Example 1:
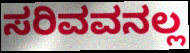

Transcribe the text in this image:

ಸರಿವವನಲ್ಲ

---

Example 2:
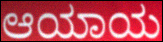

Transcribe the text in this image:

ಆಯಾಯ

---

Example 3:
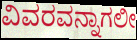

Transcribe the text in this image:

ವಿವರವನ್ನಾಗಲೀ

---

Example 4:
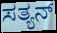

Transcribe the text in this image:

ಸತ್ಯನ್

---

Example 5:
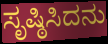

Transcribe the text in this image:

ಸೃಷ್ಠಿಸಿದನು